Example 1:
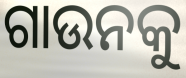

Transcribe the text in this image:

ଗାଉନକୁ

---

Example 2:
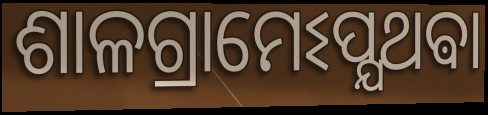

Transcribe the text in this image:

ଶାଳଗ୍ରାମେଽପ୍ଯଥଵା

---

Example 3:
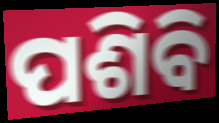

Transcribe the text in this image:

ପଶିବି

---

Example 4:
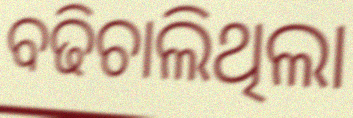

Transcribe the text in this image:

ବଢିଚାଲିଥିଲା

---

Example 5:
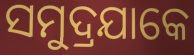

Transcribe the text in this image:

ସମୁଦ୍ରଯାକେ